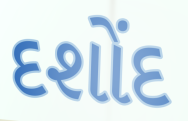
દશોંદ